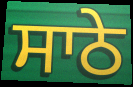
ਸਾਠੇ